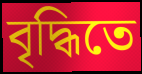
বৃদ্ধিতে